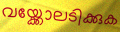
വയ്ക്കോലടിക്കുക